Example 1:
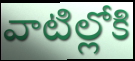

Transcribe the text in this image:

వాటిల్లోకి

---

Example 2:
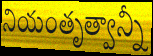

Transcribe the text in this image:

నియంతృత్వాన్నీ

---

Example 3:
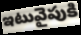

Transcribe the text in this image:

ఇటువైపుకి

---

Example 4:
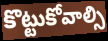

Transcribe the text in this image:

కొట్టుకోవాల్సి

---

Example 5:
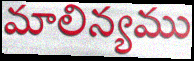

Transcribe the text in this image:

మాలిన్యము